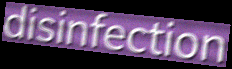
disinfection